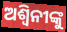
ଅଶ୍ୱିନୀଙ୍କୁ